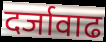
दर्जावाढ